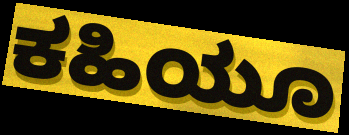
ಕಹಿಯೂ